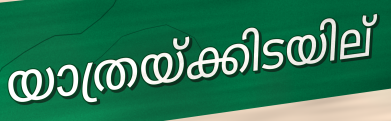
യാത്രയ്ക്കിടയില്